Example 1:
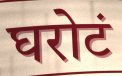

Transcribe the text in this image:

घरोटं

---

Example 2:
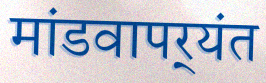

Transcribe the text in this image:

मांडवापर्यंत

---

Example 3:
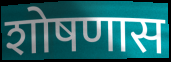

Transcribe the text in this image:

शोषणास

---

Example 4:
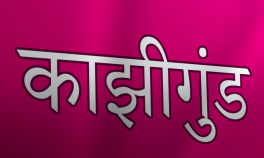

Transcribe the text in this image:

काझीगुंड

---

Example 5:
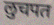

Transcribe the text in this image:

लुचपत